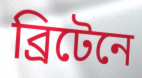
ব্রিটেনে